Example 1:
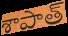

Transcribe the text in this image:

శాపాత్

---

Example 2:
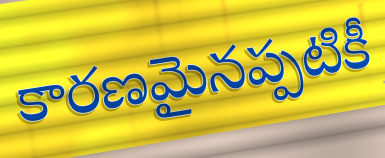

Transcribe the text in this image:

కారణమైనప్పటికీ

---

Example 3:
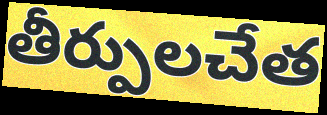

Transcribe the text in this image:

తీర్పులచేత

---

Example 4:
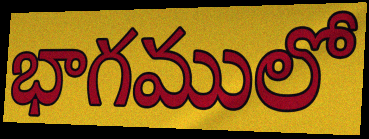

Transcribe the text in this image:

భాగములో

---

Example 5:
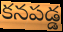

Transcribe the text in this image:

కనపడ్డ